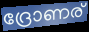
ദ്രോണര്